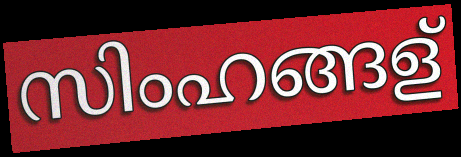
സിംഹങ്ങള്